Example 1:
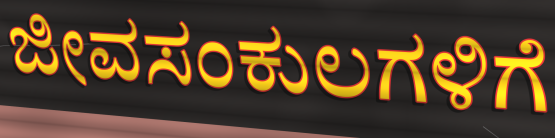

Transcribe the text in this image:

ಜೀವಸಂಕುಲಗಳಿಗೆ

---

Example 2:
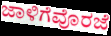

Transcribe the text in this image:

ಜಾಳಿಗೆವೊರಜೆ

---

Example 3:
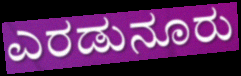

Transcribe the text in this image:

ಎರಡುನೂರು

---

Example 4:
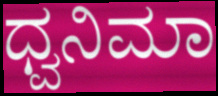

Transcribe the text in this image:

ಧ್ವನಿಮಾ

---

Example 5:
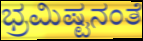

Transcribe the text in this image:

ಭ್ರಮಿಷ್ಟನಂತೆ